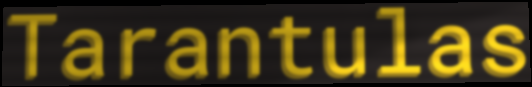
Tarantulas